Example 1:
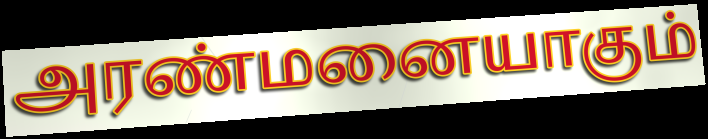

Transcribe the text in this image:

அரண்மனையாகும்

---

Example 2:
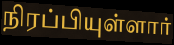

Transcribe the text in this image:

நிரப்பியுள்ளார்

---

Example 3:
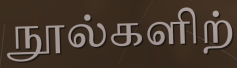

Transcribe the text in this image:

நூல்களிற்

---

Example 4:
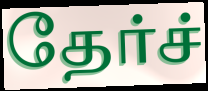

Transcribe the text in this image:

தேர்ச்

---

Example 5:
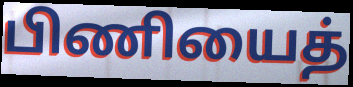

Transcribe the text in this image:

பிணியைத்